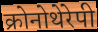
क्रोनोथेरेपी